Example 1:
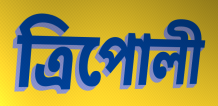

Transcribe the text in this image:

ত্রিপোলী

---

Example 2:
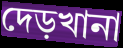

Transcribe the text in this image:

দেড়খানা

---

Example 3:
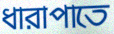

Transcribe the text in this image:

ধারাপাতে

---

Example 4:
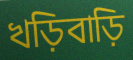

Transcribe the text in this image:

খড়িবাড়ি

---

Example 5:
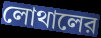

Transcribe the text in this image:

লোথালের